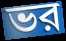
ভর